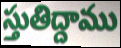
స్తుతిద్దాము